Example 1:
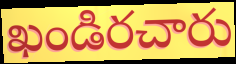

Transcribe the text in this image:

ఖండిరచారు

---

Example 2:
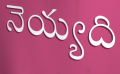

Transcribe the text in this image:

నెయ్యది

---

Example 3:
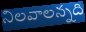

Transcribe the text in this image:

నిలవాలన్నది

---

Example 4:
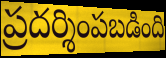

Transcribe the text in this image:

ప్రదర్శింపబడింది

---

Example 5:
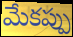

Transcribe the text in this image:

మేకప్పు